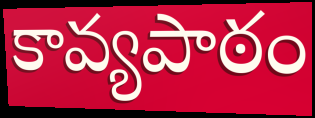
కావ్యపాఠం